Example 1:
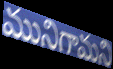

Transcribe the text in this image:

మునిగామని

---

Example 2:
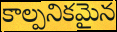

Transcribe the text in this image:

కాల్పనికమైన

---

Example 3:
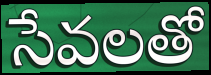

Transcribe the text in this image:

సేవలతో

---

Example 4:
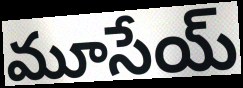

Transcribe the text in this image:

మూసేయ్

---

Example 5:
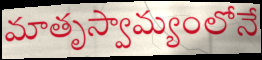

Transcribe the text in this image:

మాతృస్వామ్యంలోనే